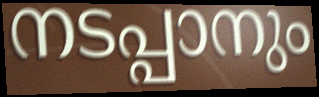
നടപ്പാനും